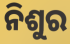
ନିଶୁର